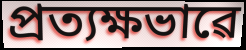
প্ৰত্যক্ষভাৱে